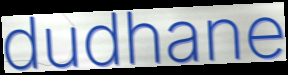
dudhane